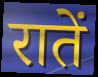
रातें